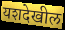
यशदेखील